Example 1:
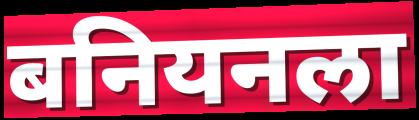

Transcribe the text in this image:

बनियनला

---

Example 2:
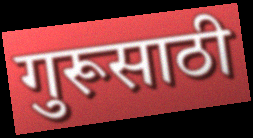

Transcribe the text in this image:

गुरूसाठी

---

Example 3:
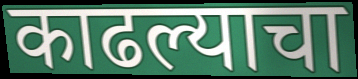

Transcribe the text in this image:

काढल्याचा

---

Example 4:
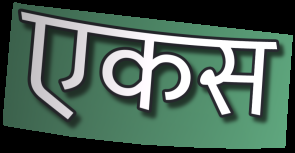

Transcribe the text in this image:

एकस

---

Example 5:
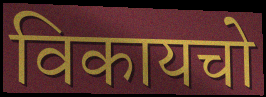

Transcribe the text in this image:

विकायचो